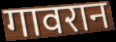
गावरान